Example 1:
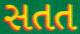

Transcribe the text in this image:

સતત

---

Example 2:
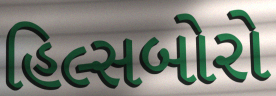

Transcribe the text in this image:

હિલ્સબોરો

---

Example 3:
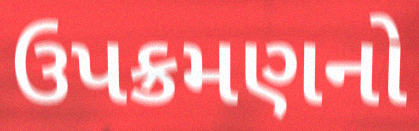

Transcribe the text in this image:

ઉપક્રમણનો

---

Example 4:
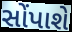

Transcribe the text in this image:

સોંપાશે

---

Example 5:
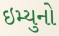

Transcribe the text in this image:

ઇમ્યુનો